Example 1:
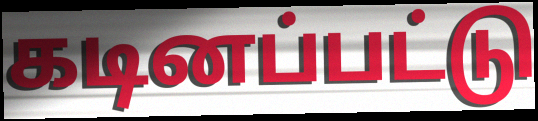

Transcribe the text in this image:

கடினப்பட்டு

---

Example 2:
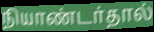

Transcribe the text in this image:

நியாண்டர்தால்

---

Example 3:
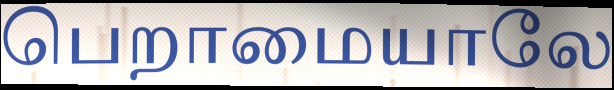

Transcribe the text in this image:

பெறாமையாலே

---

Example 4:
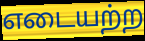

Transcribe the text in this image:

எடையற்ற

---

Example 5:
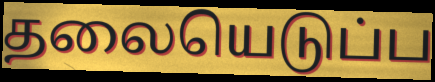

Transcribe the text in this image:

தலையெடுப்ப